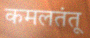
कमलतंतू